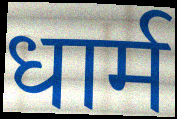
धार्म